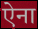
ऐना